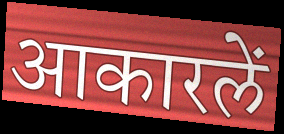
आकारलें